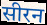
सीरन